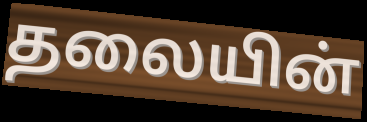
தலையின்